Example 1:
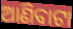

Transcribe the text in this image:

ଆଣିବାଟା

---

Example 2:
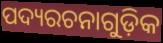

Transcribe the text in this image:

ପଦ୍ୟରଚନାଗୁଡ଼ିକ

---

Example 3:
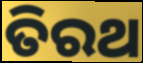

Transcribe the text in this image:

ତିରଥ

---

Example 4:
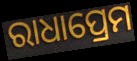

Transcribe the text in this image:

ରାଧାପ୍ରେମ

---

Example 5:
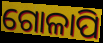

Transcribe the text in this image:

ଗୋଳାପି